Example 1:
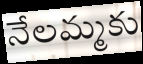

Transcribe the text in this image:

నేలమ్మకు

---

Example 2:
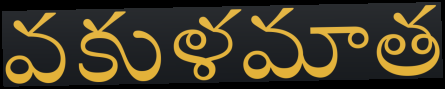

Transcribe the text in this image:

వకుళమాత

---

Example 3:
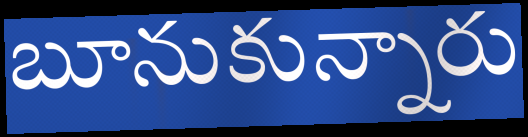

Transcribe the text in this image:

బూనుకున్నారు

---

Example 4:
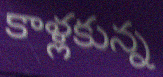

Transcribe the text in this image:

కాళ్లకున్న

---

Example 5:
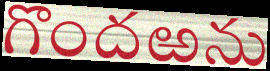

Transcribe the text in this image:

గొందఱను